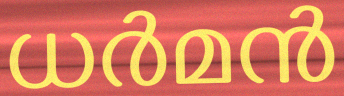
ധർമൻ